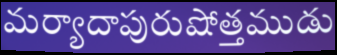
మర్యాదాపురుషోత్తముడు